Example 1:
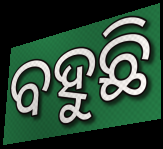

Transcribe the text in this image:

ବହୁଛି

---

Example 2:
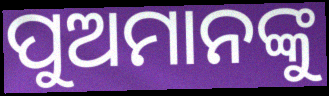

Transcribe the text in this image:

ପୁଅମାନଙ୍କୁ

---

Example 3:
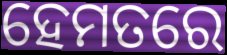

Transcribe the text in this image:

ହେମତରେ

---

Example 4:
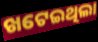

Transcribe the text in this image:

ଖଟେଇଥିଲା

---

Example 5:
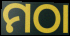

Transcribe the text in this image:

ମଠା